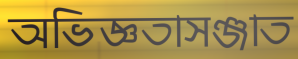
অভিজ্ঞতাসঞ্জাত